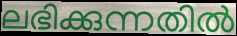
ലഭിക്കുന്നതിൽ